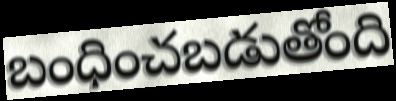
బంధించబడుతోంది